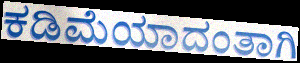
ಕಡಿಮೆಯಾದಂತಾಗಿ